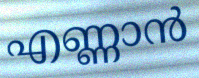
എണ്ണാൻ